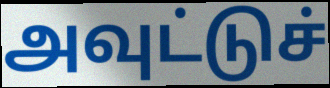
அவுட்டுச்